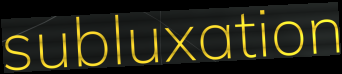
subluxation